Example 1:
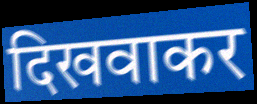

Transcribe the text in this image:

दिखवाकर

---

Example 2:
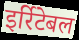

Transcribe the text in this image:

इर्रिटेबल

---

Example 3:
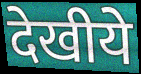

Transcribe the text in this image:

देखीये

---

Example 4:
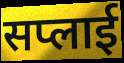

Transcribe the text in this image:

सप्लाई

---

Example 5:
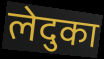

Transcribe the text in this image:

लेदुका